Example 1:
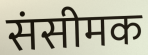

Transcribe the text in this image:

संसीमक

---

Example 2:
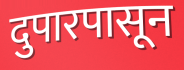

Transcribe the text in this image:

दुपारपासून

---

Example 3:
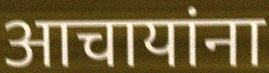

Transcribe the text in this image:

आचायांना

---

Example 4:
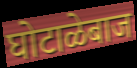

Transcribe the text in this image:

घोटाळेबाज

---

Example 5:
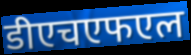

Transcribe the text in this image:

डीएचएफएल